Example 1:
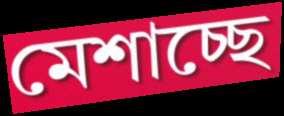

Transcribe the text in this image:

মেশাচ্ছে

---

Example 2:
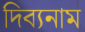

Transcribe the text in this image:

দিব্যনাম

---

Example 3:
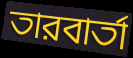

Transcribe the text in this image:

তারবার্তা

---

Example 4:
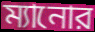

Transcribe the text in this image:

ম্যানোর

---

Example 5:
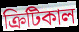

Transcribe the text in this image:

ক্রিটিকাল